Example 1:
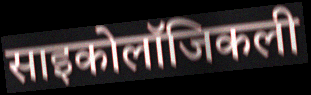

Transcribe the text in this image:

साइकोलॉजिकली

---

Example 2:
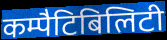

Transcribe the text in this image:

कम्पैटिबिलिटी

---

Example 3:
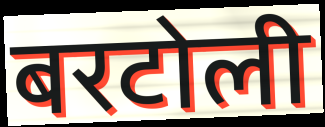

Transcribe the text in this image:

बरटोली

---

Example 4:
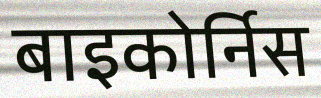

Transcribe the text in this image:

बाइकोर्निस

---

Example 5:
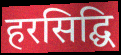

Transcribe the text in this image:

हरसिद्घि